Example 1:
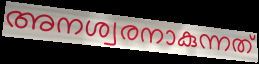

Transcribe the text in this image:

അനശ്വരനാകുന്നത്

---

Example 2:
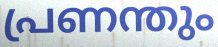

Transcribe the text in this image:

പ്രണന്തും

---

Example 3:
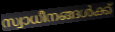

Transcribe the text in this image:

സ്വാധീനങ്ങൾക്ക്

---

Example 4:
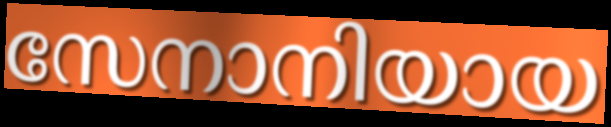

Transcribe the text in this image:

സേനാനിയായ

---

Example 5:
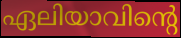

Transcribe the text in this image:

ഏലിയാവിന്റെ